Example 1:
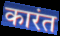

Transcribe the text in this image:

कारंत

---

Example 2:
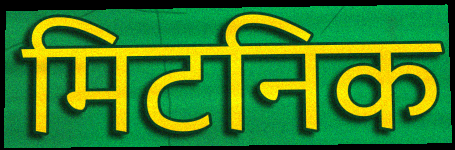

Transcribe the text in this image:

मिटनिक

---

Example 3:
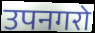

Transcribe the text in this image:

उपनगरो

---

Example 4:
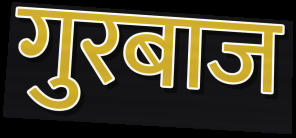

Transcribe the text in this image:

गुरबाज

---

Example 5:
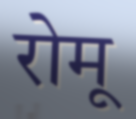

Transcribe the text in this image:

रोमू